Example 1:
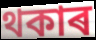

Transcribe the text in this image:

থকাৰ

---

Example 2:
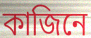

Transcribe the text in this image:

কাজিনে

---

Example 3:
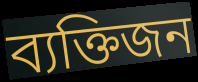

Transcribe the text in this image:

ব্যক্তিজন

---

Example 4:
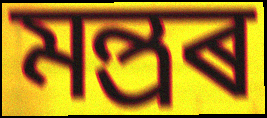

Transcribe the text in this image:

মন্ত্ৰৰ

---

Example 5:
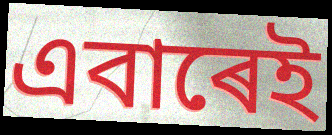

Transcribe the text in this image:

এবাৰেই